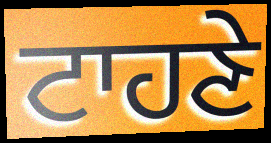
ਟਾਹਣੇ